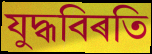
যুদ্ধবিৰতি